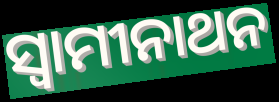
ସ୍ୱାମୀନାଥନ